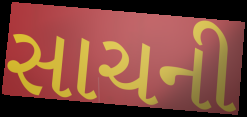
સાચની